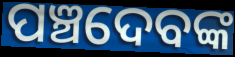
ପଞ୍ଚଦେବଙ୍କ